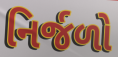
નિર્જળો